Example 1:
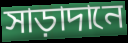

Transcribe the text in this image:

সাড়াদানে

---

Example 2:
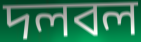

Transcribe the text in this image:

দলবল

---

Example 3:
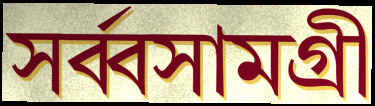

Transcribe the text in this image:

সর্ব্বসামগ্রী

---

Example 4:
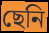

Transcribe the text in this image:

ছেনি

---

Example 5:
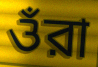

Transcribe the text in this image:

ওঁরা